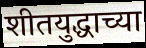
शीतयुद्धाच्या